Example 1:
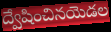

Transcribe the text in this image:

ద్వేషించినయెడల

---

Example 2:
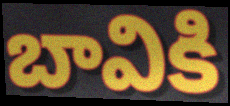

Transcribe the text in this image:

బావికి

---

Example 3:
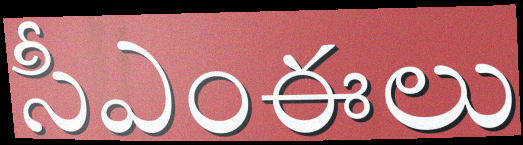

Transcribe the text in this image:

సీఎంఈలు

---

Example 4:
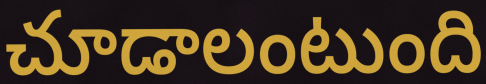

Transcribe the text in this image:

చూడాలంటుంది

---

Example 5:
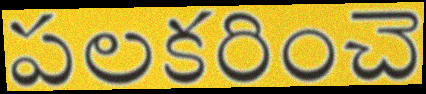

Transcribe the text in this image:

పలకరించె